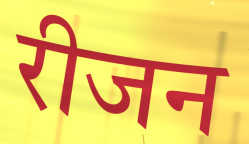
रीजन